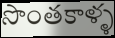
సొంతకాళ్ళ